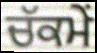
ਚੱਕਮੇਂ